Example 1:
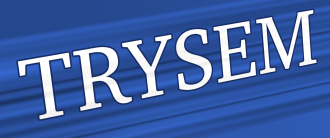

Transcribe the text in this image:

TRYSEM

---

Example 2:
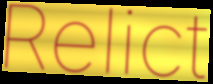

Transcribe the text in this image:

Relict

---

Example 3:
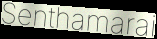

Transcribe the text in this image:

Senthamarai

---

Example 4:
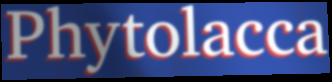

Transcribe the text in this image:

Phytolacca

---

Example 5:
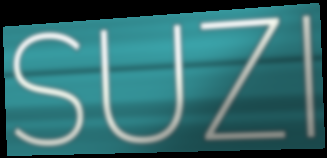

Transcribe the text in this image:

SUZI